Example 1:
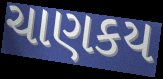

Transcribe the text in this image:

ચાણકય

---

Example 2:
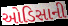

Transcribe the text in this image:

ઓડિસાની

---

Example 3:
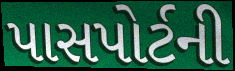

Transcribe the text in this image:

પાસપોર્ટની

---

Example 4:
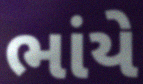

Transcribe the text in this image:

ભાંયે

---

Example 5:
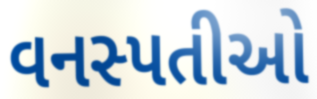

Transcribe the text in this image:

વનસ્પતીઓ